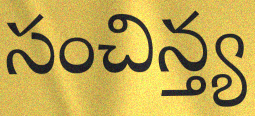
సంచిన్త్య